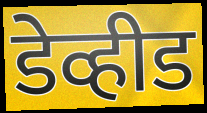
डेव्हीड